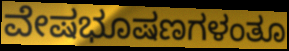
ವೇಷಭೂಷಣಗಳಂತೂ